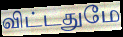
விட்டதுமே